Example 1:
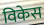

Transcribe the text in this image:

विकेस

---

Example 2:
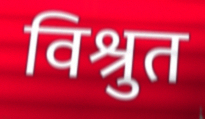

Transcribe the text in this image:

विश्रुत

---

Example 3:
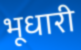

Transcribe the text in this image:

भूधारी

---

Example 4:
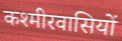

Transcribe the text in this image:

कश्मीरवासियों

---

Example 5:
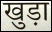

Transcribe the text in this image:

खुड़ा